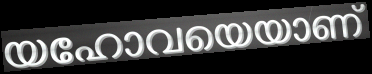
യഹോവയെയാണ്